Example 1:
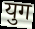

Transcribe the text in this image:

युग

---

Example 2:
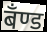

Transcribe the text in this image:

बँण्ड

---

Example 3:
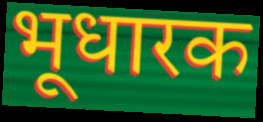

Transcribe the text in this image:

भूधारक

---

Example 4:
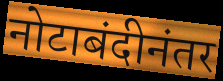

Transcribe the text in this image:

नोटाबंदीनंतर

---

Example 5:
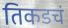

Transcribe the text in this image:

तिकडचं